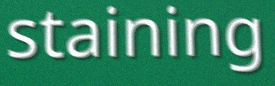
staining